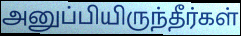
அனுப்பியிருந்தீர்கள்